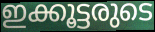
ഇക്കൂട്ടരുടെ